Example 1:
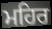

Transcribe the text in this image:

ਮਹਿਰ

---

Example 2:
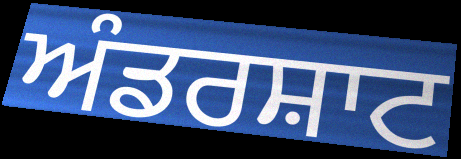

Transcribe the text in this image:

ਅੰਡਰਸ਼ਾਟ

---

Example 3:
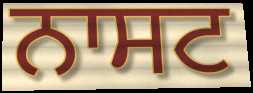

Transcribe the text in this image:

ਨਾਸਟ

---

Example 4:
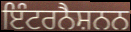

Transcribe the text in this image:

ਇੰਟਰਨੈਸ਼ਨਨ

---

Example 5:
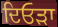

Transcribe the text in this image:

ਦਿਓੜਾ